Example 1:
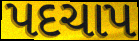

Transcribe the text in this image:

પદચાપ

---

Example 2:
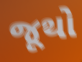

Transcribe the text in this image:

જૂથો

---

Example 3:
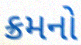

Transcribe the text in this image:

ક્રમનો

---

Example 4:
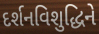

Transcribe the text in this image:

દર્શનવિશુદ્ધિને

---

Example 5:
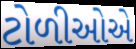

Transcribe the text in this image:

ટોળીઓએ